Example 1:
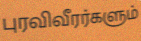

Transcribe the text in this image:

புரவிவீரர்களும்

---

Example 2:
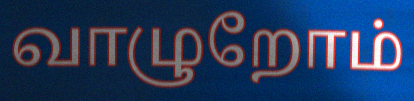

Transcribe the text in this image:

வாழுறோம்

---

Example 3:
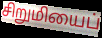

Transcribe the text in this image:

சிறுமியைப்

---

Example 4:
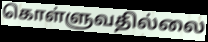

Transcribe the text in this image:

கொள்ளுவதில்லை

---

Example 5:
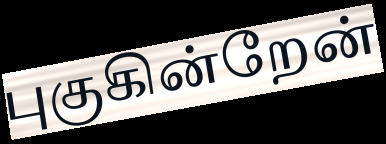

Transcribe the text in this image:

புகுகின்றேன்